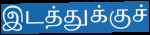
இடத்துக்குச்